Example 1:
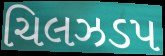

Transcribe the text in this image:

ચિલઝડપ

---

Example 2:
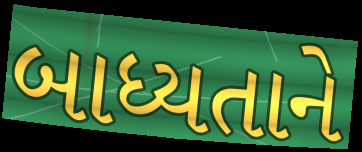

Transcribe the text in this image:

બાધ્યતાને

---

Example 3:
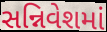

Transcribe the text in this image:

સન્નિવેશમાં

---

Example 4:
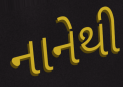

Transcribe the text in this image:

નાનેથી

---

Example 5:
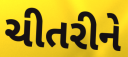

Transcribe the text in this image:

ચીતરીને